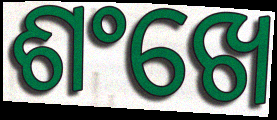
ଶଂଖେ